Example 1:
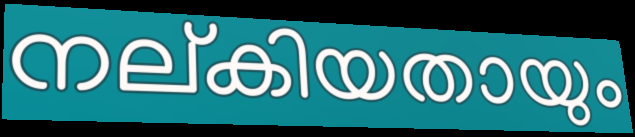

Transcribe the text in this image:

നല്കിയതായും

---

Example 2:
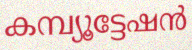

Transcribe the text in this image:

കമ്പ്യൂട്ടേഷൻ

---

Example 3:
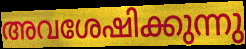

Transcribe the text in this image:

അവശേഷിക്കുന്നു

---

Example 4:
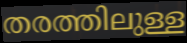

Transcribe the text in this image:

തരത്തിലുള്ള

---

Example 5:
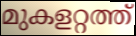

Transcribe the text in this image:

മുകളറ്റത്ത്